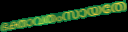
ഭക്താവതംസായതേ